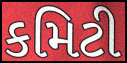
કમિટી